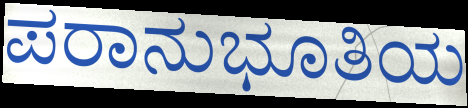
ಪರಾನುಭೂತಿಯ